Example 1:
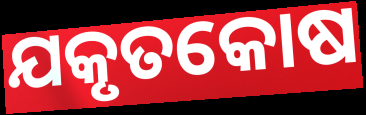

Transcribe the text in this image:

ଯକୃତକୋଷ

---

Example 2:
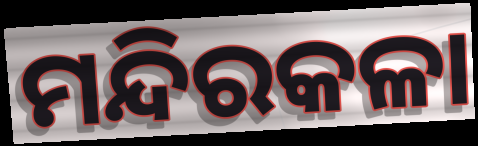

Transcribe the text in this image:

ମନ୍ଦିରକଳା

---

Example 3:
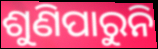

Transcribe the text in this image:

ଶୁଣିପାରୁନି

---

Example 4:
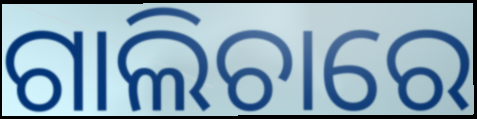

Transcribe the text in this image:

ଗାଲିଚାରେ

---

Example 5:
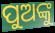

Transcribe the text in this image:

ପୁଅଙ୍କୁ